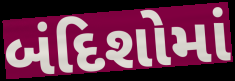
બંદિશોમાં